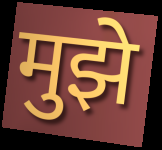
मुझे